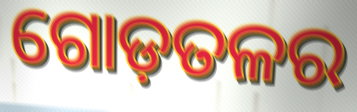
ଗୋଡ଼ତଳର